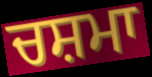
ਚਸ਼ਮਾ